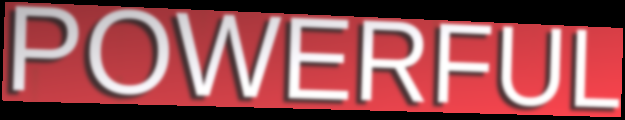
POWERFUL